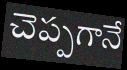
చెప్పగానే